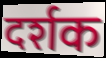
दर्शक